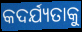
କଦର୍ଯ୍ୟତାକୁ